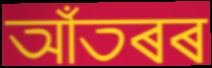
আঁতৰৰ